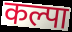
कल्पा